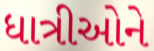
ધાત્રીઓને